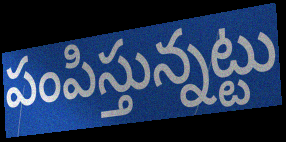
పంపిస్తున్నట్టు